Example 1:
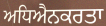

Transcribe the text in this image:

ਅਧਿਐਨਕਰਤਾ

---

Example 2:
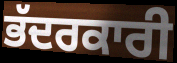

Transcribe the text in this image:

ਭੱਦਰਕਾਰੀ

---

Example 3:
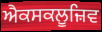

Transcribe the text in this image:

ਐਕਸਕਲੂਜ਼ਿਵ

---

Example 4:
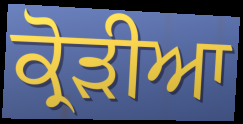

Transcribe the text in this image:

ਕ੍ਰੋੜੀਆ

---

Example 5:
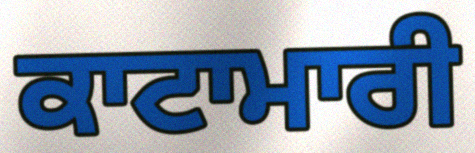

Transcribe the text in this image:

ਕਾਟਾਮਾਰੀ